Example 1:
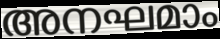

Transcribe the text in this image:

അനഘമാം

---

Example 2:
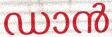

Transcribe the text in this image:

ഡാൻ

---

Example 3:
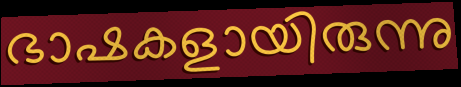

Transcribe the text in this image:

ഭാഷകളായിരുന്നു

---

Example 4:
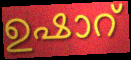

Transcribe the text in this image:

ഉഷാറ്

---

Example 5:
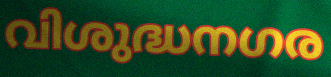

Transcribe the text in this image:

വിശുദ്ധനഗര